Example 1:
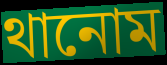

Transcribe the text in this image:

থানোম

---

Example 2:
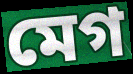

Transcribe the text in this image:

মেগ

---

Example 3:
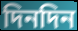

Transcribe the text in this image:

দিনদিন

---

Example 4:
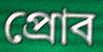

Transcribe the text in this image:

প্রোব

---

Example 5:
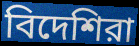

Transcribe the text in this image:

বিদেশিরা